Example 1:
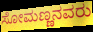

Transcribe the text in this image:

ಸೋಮಣ್ಣನವರು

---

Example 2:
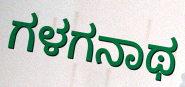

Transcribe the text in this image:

ಗಳಗನಾಥ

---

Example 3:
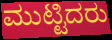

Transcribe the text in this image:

ಮುಟ್ಟಿದರು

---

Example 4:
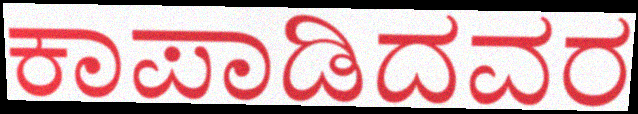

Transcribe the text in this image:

ಕಾಪಾಡಿದವರ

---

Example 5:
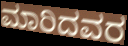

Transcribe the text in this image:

ಮಾರಿದವರ